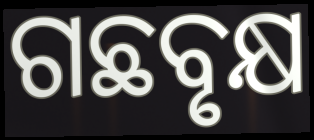
ଗଛବୃକ୍ଷ